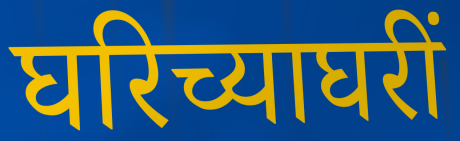
घरिच्याघरीं